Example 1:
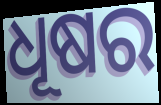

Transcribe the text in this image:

ଧୂଷର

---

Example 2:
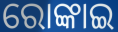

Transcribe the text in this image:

ରୋଙ୍କାଇ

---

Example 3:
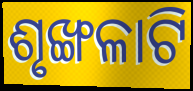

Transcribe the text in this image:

ଶୃଙ୍ଖଳାଟି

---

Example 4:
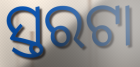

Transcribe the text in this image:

ସ୍ତରଟା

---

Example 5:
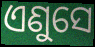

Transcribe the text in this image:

ଏଣୁସେ